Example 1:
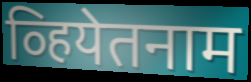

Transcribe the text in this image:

व्हियेतनाम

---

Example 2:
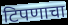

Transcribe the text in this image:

टिपणाचा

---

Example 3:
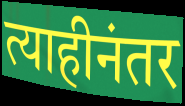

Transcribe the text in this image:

त्याहीनंतर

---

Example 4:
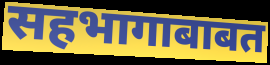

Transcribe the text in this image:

सहभागाबाबत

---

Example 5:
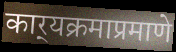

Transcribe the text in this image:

कार्यक्रमाप्रमाणे